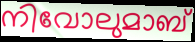
നിവോലുമാബ്